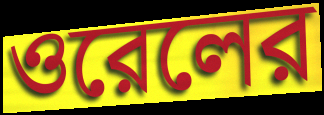
ওরেলের